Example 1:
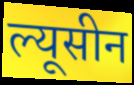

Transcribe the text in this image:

ल्यूसीन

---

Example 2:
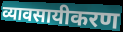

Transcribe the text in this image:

व्यावसायीकरण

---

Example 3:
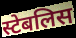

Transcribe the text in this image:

स्टेबलिस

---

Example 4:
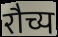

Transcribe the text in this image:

रौच्य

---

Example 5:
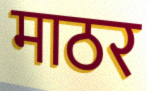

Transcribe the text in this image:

माठर